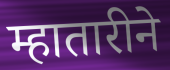
म्हातारीने